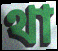
থা